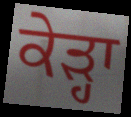
ਕੇੜ੍ਹਾ